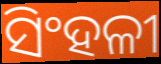
ସିଂହଳୀ